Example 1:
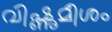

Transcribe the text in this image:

വിഷ്ണുമീശം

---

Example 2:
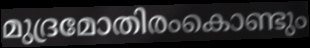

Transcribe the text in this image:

മുദ്രമോതിരംകൊണ്ടും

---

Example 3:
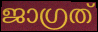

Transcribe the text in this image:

ജാഗ്രത്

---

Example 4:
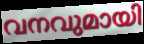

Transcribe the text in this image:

വനവുമായി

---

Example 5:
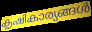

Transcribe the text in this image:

കൃഷികാര്യങ്ങൾ